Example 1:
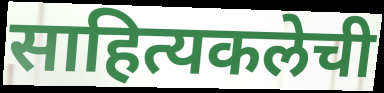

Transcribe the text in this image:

साहित्यकलेची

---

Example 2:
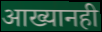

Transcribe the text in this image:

आख्यानही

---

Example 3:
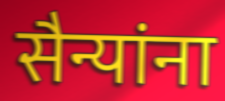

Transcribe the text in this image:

सैन्यांना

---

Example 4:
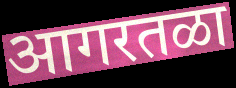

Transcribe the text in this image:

आगरतळा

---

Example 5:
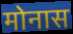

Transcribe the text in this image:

मोनास